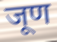
जूण